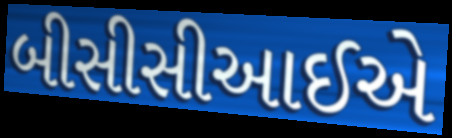
બીસીસીઆઈએ